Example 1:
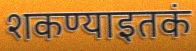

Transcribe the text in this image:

शकण्याइतकं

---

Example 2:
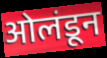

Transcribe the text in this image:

ओलंडून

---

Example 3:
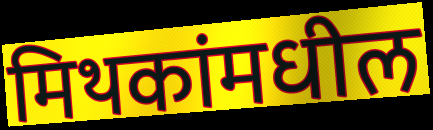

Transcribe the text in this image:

मिथकांमधील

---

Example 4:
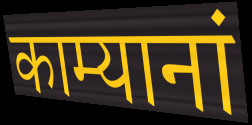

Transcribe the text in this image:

काम्यानां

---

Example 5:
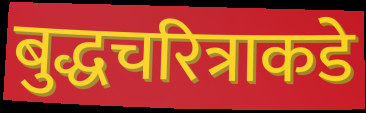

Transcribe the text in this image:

बुद्धचरित्राकडे